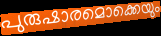
പുരുഷാരമൊക്കെയും